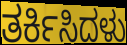
ತರ್ಕಿಸಿದಳು